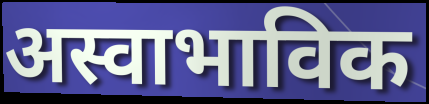
अस्वाभाविक